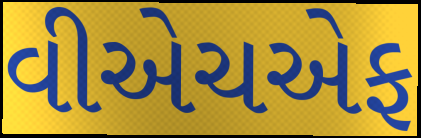
વીએચએફ